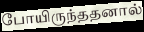
போயிருந்ததனால்